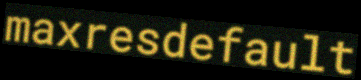
maxresdefault